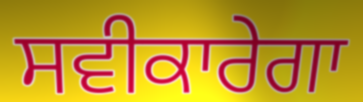
ਸਵੀਕਾਰੇਗਾ